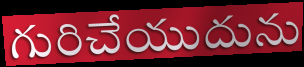
గురిచేయుదును